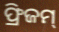
ଫ୍ରିଜମ୍